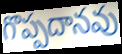
గొప్పదానవు